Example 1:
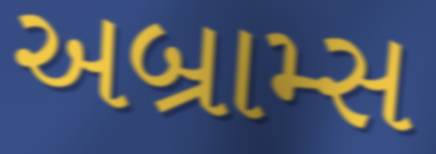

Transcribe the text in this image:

અબ્રામ્સ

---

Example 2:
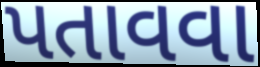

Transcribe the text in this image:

પતાવવા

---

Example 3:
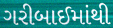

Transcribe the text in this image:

ગરીબાઈમાંથી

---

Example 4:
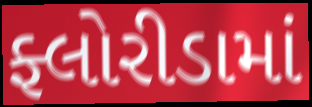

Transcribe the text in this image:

ફ્લોરીડામાં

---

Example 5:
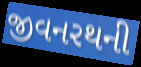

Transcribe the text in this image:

જીવનરથની